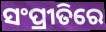
ସଂପ୍ରୀତିରେ